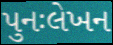
પુનઃલેખન